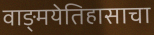
वाङ्मयेतिहासाचा